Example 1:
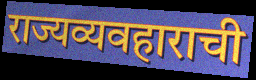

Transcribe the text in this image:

राज्यव्यवहाराची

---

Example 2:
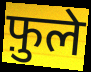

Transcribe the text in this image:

फ़ुले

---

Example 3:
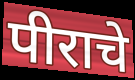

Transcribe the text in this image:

पीराचे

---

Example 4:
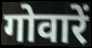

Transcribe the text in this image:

गोवारें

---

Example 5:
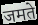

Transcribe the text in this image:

जमते